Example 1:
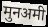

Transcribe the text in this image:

मुनअमी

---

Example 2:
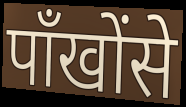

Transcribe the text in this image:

पाँखोंसे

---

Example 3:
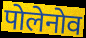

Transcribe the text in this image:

पोलेनोव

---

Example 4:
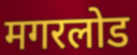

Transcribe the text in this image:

मगरलोड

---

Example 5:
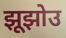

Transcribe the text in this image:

झूझोउ